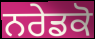
ਨਰੇਡਕੋ